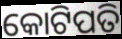
କୋଟିପତି